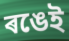
ৰঙেই